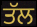
ਤੱਲ